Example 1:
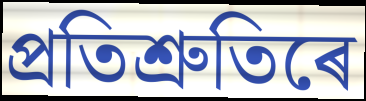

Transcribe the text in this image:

প্ৰতিশ্ৰুতিৰে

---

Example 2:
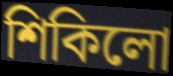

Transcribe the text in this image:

শিকিলো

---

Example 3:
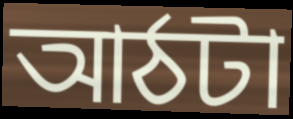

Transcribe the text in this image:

আঠটা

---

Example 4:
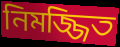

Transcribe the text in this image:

নিমজ্জিত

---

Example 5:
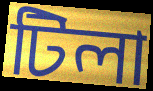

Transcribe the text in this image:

টিলা